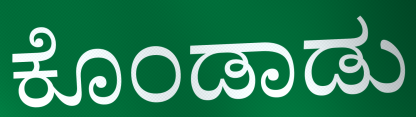
ಕೊಂಡಾಡು